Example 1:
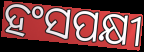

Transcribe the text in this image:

ହଂସପକ୍ଷୀ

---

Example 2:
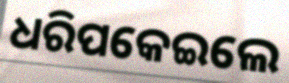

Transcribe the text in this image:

ଧରିପକେଇଲେ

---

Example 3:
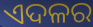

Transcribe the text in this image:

ଏଦଳର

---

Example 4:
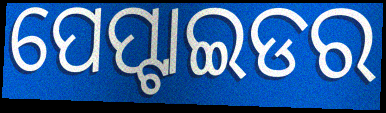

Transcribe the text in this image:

ପେପ୍ଟାଇଡର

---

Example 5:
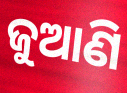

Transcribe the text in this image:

ଜୁଆଣି